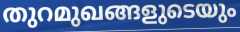
തുറമുഖങ്ങളുടെയും